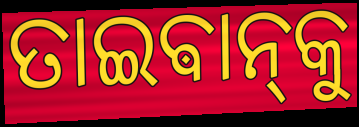
ତାଇଵାନ୍‌କୁ